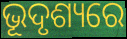
ଭୂଦୃଶ୍ୟରେ